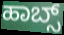
ಹಾಬ್ಸ್